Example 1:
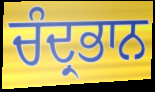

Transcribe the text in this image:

ਚੰਦ੍ਰਭਾਨ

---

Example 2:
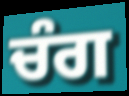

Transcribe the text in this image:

ਚੰਗ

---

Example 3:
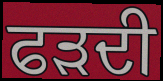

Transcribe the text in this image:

ਫੜਦੀ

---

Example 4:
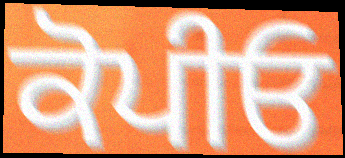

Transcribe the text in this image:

ਕੋਪੀਓ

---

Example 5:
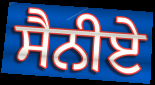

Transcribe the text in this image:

ਸੈਨੀਏ